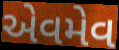
એવમેવ